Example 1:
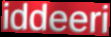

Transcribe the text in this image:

iddeeri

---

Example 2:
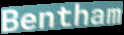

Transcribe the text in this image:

Bentham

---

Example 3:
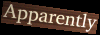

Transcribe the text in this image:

Apparently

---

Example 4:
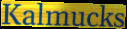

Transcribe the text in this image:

Kalmucks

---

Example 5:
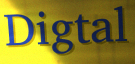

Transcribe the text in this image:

Digtal